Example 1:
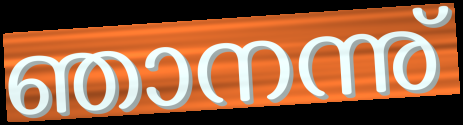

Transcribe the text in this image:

ഞാനന്നു്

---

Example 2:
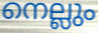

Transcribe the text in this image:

നെല്ലും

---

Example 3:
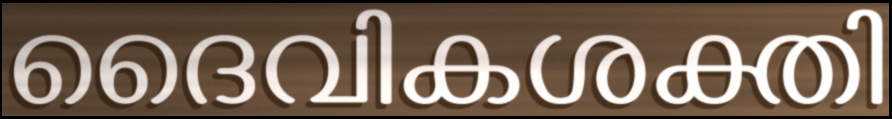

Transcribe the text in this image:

ദൈവികശക്തി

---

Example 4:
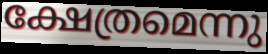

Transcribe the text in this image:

ക്ഷേത്രമെന്നു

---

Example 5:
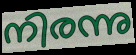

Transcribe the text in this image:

നിരന്നു